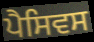
ਪੈਸਿਵਸ